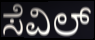
ಸೆವಿಲ್